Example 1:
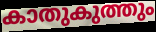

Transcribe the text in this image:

കാതുകുത്തും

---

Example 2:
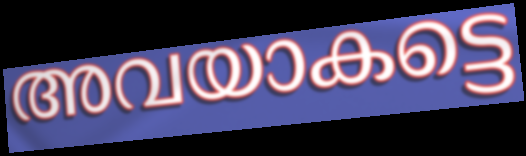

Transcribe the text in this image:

അവയാകട്ടെ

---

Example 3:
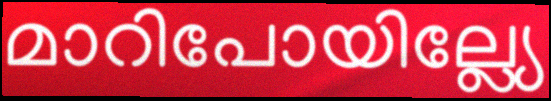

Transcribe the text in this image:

മാറിപോയില്ല്യേ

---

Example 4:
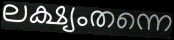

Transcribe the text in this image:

ലക്ഷ്യംതന്നെ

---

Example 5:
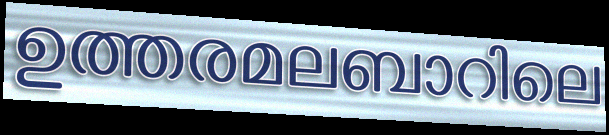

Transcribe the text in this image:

ഉത്തരമലബാറിലെ